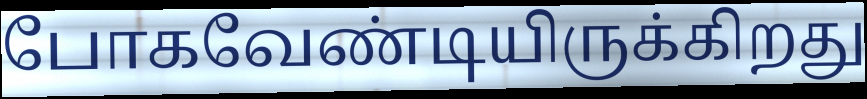
போகவேண்டியிருக்கிறது